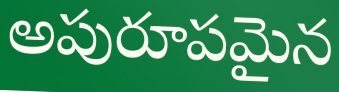
అపురూపమైన